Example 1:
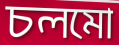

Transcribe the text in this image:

চলমো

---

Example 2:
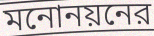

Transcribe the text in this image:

মনোনয়নের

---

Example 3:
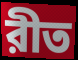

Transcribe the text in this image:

রীত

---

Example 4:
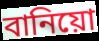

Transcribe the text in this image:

বানিয়ো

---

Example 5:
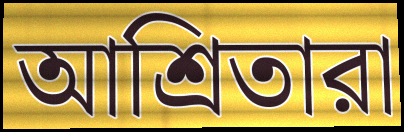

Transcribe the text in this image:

আশ্রিতারা